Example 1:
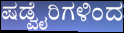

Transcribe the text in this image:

ಷಡ್ವೈರಿಗಳಿಂದ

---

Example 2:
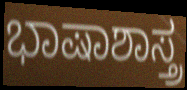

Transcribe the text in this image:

ಭಾಷಾಶಾಸ್ತ್ರ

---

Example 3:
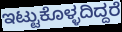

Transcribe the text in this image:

ಇಟ್ಟುಕೊಳ್ಳದಿದ್ದರೆ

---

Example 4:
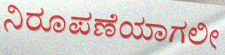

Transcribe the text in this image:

ನಿರೂಪಣೆಯಾಗಲೀ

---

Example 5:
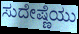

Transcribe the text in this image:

ಸುದೇಷ್ಣೆಯು